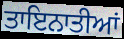
ਤਾਇਨਾਤੀਆਂ